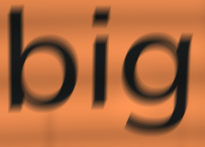
big